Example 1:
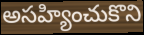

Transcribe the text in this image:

అసహ్యించుకొని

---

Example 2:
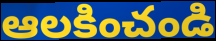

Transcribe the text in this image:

ఆలకించండి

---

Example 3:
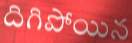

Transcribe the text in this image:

దిగిపోయిన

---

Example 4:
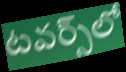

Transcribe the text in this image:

టవర్స్‌లో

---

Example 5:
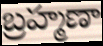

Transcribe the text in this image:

బ్రహ్మణా